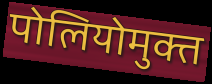
पोलियोमुक्त